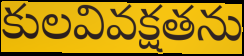
కులవివక్షతను